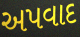
અપવાદ